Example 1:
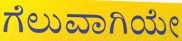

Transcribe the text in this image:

ಗೆಲುವಾಗಿಯೇ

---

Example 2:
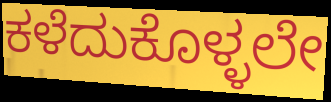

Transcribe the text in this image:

ಕಳೆದುಕೊಳ್ಳಲೇ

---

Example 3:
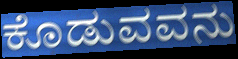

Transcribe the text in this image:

ಕೊಡುವವನು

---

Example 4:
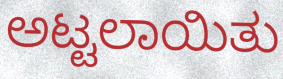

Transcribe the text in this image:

ಅಟ್ಟಲಾಯಿತು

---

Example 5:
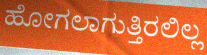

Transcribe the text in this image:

ಹೋಗಲಾಗುತ್ತಿರಲಿಲ್ಲ